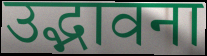
उद्भावना